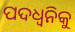
ପଦଧ୍ୱନିକୁ